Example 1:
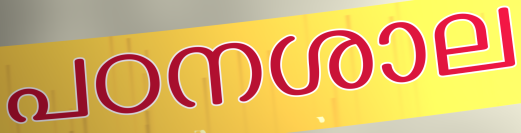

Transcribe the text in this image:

പഠനശാല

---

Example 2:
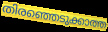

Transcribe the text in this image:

തിരഞ്ഞെടുക്കാത്ത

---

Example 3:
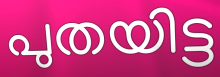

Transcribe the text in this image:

പുതയിട്ട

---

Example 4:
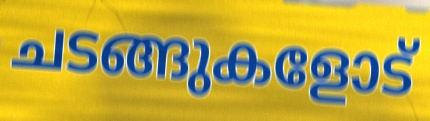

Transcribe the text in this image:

ചടങ്ങുകളോട്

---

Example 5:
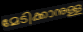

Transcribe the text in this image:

മേടിക്കാനുള്ള